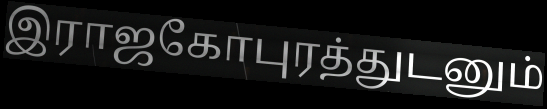
இராஜகோபுரத்துடனும்